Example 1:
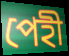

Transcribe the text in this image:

পেহী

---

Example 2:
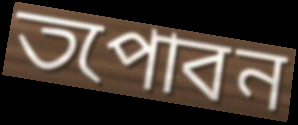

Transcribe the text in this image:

তপোবন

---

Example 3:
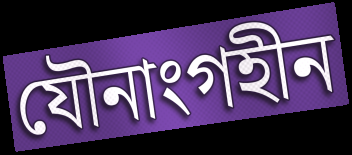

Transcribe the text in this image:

যৌনাংগহীন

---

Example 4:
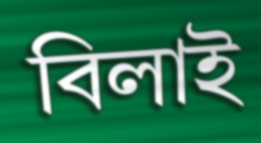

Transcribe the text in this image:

বিলাই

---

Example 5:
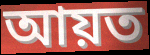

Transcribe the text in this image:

আয়ত